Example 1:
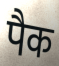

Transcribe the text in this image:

पैक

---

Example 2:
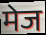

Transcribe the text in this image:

मेज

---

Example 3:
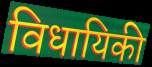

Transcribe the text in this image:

विधायिकी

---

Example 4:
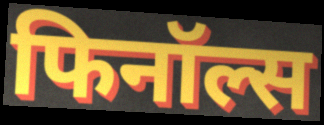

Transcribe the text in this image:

फिनॉल्स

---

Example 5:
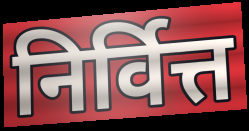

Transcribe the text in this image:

निर्वित्त